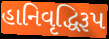
હાનિવૃદ્ધિરૂપ